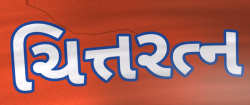
ચિત્તરત્ન